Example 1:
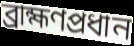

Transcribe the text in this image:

ব্রাহ্মণপ্রধান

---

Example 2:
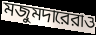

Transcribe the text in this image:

মজুমদারেরাও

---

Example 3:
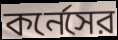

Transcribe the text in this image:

কর্নেসের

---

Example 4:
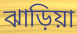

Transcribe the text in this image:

ঝাড়িয়া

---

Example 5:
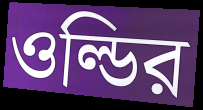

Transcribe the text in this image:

ওল্ডির